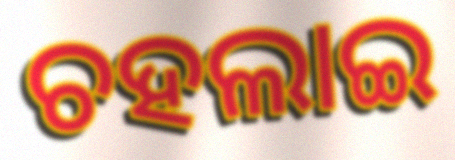
ଚହଲାଇ